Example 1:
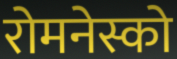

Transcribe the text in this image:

रोमनेस्को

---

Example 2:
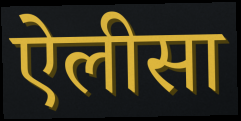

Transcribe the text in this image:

ऐलीसा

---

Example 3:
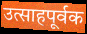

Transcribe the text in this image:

उत्साहपूर्वक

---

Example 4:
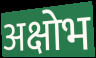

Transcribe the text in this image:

अक्षोभ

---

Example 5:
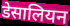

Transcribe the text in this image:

डेसालियन